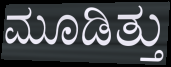
ಮೂಡಿತ್ತು